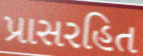
પ્રાસરહિત